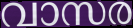
വാസര